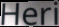
Heri